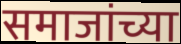
समाजांच्या